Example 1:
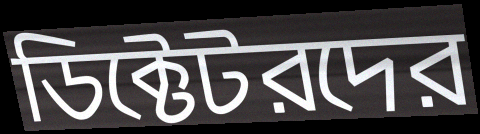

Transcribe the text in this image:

ডিক্টেটরদের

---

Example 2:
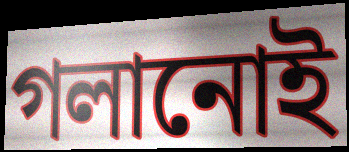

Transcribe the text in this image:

গলানোই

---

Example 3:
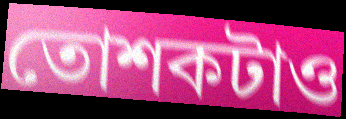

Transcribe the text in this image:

তোশকটাও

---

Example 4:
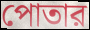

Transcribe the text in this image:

পোতার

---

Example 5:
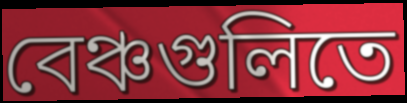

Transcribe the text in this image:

বেঞ্চগুলিতে